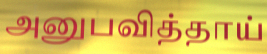
அனுபவித்தாய்